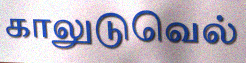
காலுடுவெல்